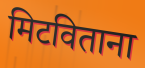
मिटविताना